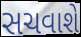
સચવાશે